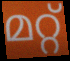
മറ്റ്